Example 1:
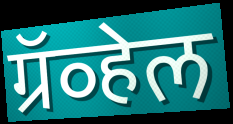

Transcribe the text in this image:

ग्रॅव्हेल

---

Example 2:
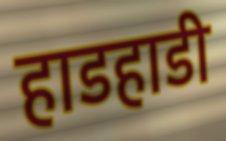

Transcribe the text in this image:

हाडहाडी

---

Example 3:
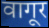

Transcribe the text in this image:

वागूर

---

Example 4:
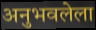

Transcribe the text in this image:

अनुभवलेला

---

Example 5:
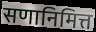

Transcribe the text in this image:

सणानिमित्त